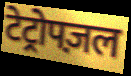
टेट्रोपज़ल